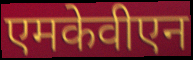
एमकेवीएन